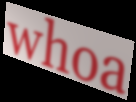
whoa